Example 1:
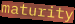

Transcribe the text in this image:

maturity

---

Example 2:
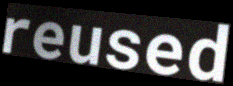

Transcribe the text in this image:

reused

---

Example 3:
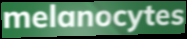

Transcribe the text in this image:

melanocytes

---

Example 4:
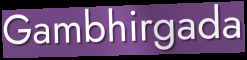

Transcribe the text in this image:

Gambhirgada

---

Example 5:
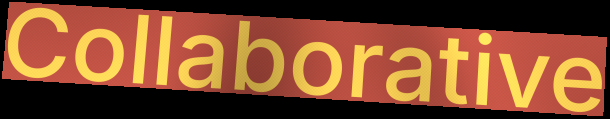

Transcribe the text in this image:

Collaborative